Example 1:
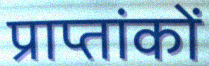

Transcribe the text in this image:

प्राप्तांकों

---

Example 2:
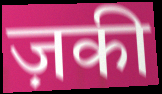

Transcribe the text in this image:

ज़की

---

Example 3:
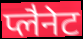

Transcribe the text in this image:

प्लैनेट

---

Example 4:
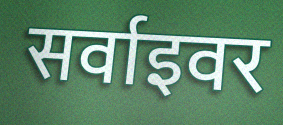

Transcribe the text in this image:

सर्वाइवर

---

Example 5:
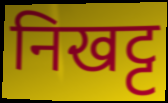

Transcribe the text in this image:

निखट्ट